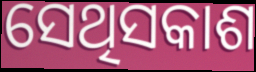
ସେଥିସକାଶ